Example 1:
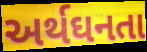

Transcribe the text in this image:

અર્થઘનતા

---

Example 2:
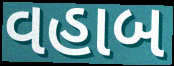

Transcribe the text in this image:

વહાબ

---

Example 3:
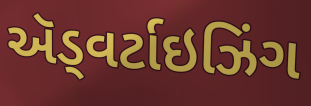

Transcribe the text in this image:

ઍડ્વર્ટાઇઝિંગ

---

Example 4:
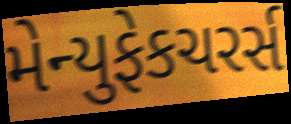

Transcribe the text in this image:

મેન્યુફેકચરર્સ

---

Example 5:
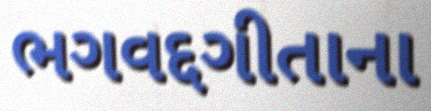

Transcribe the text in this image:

ભગવદ્દગીતાના